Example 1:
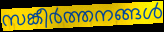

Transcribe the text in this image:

സങ്കീർത്തനങ്ങൾ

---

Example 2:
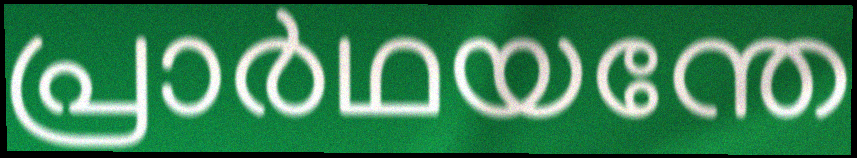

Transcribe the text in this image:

പ്രാർഥയന്തേ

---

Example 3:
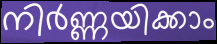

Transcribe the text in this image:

നിർണ്ണയിക്കാം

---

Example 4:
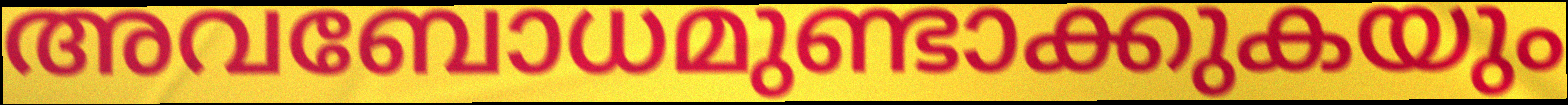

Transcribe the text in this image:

അവബോധമുണ്ടാക്കുകയും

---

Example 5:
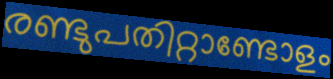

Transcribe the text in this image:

രണ്ടുപതിറ്റാണ്ടോളം